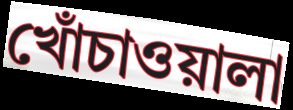
খোঁচাওয়ালা